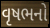
વૃષભનો